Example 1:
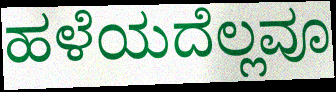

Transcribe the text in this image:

ಹಳೆಯದೆಲ್ಲವೂ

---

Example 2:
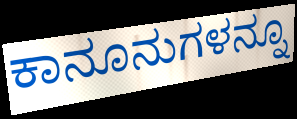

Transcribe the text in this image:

ಕಾನೂನುಗಳನ್ನೂ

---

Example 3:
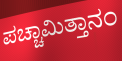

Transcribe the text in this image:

ಪಚ್ಚಾಮಿತ್ತಾನಂ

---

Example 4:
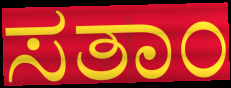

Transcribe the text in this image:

ಸತಾಂ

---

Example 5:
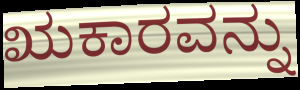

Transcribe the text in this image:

ಋಕಾರವನ್ನು